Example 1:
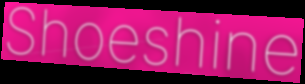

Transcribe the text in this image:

Shoeshine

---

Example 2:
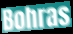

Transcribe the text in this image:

Bohras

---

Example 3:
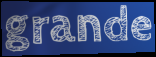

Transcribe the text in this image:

grande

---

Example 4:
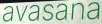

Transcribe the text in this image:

avasana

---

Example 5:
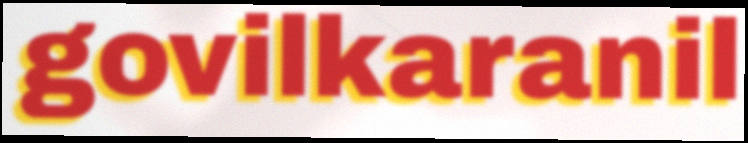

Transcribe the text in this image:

govilkaranil